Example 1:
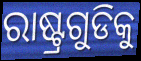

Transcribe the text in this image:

ରାଷ୍ଟ୍ରଗୁଡିକୁ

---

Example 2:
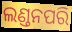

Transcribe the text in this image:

ଲଣ୍ଡନପରି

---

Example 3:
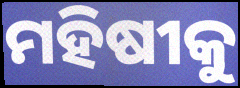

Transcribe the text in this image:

ମହିଷୀକୁ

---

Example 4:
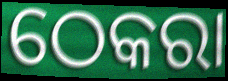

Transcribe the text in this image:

ଠେକରା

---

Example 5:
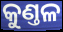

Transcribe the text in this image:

କୁଣ୍ତଳ